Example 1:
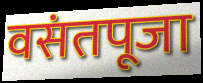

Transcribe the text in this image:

वसंतपूजा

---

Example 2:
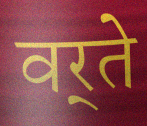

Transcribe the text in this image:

वर्ते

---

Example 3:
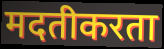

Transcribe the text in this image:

मदतीकरता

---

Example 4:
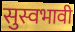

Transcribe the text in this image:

सुस्वभावी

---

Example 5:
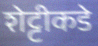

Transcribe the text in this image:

शेट्टीकडे